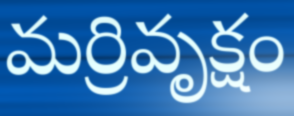
మర్రివృక్షం